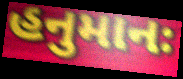
હનુમાનઃ